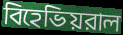
বিহেভিয়রাল